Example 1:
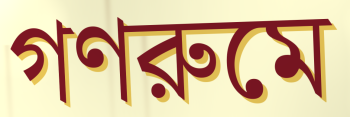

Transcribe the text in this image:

গণরুমে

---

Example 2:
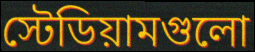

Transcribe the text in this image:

স্টেডিয়ামগুলো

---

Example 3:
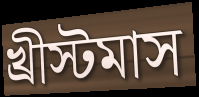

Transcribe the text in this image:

খ্রীস্টমাস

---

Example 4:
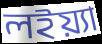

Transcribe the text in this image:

লইয়্যা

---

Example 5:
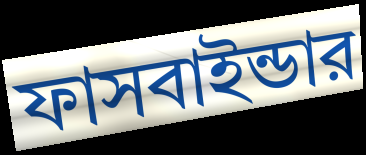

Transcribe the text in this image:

ফাসবাইন্ডার